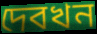
দেবখন